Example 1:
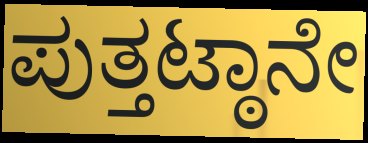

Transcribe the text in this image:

ಪುತ್ತಟ್ಠಾನೇ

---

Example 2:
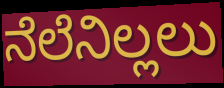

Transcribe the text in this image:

ನೆಲೆನಿಲ್ಲಲು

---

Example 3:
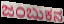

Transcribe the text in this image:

ಜಂಬುಕನ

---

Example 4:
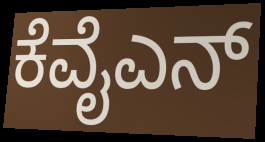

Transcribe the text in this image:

ಕೆವೈಎನ್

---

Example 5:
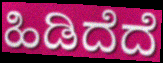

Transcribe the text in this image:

ಹಿಡಿದೆದೆ